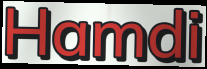
Hamdi